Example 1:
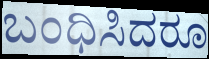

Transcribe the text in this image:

ಬಂಧಿಸಿದರೂ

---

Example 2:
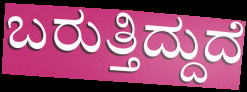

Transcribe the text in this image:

ಬರುತ್ತಿದ್ದುದೆ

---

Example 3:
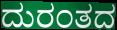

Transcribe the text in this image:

ದುರಂತದ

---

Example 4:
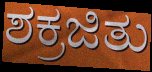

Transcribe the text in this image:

ಶಕ್ರಜಿತು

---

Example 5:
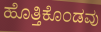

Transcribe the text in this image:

ಹೊತ್ತಿಕೊಂಡವು